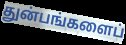
துன்பங்களைப்